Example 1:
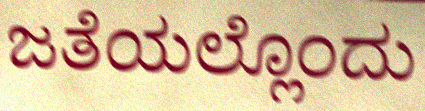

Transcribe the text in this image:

ಜತೆಯಲ್ಲೊಂದು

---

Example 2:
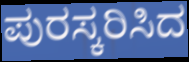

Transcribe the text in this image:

ಪುರಸ್ಕರಿಸಿದ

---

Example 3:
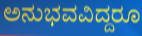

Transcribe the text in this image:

ಅನುಭವವಿದ್ದರೂ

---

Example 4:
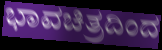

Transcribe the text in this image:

ಭಾವಚಿತ್ರದಿಂದ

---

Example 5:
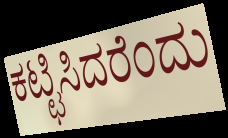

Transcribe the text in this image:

ಕಟ್ಟಿಸಿದರೆಂದು